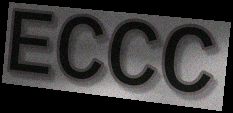
ECCC